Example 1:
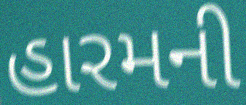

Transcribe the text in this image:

હારમની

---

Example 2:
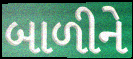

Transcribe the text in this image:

બાળીને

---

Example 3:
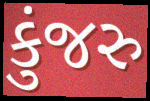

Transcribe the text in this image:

કુંજરુ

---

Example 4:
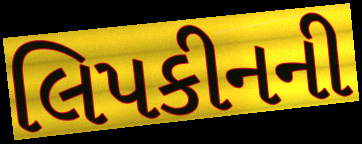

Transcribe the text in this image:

લિપકીનની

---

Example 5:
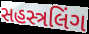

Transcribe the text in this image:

સહસ્ત્રલિંગ